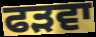
ਫੜਵਾ